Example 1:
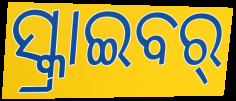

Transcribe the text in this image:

ସ୍କ୍ରାଇବର୍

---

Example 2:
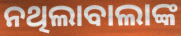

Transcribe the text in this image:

ନଥିଲାବାଲାଙ୍କ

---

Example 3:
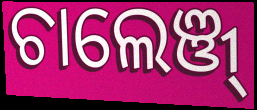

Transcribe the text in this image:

ଚାଲେଞ୍ଜ୍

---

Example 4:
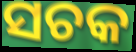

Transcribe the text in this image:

ସଚକ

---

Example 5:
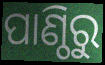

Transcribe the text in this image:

ପାଣ୍ଠିରୁ